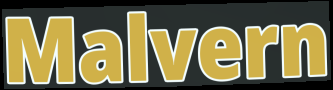
Malvern